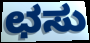
ಛಸು